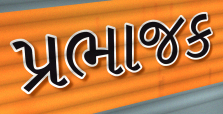
પ્રભાજક